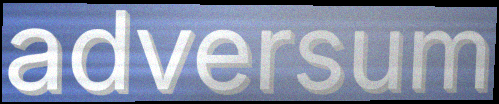
adversum